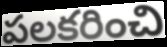
పలకరించి